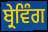
ਬ੍ਰੇਵਿੰਗ